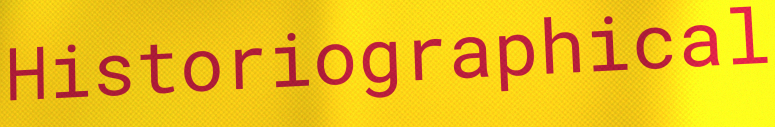
Historiographical